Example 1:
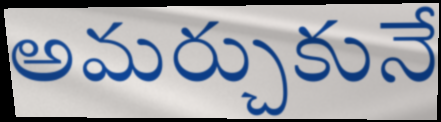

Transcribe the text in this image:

అమర్చుకునే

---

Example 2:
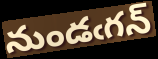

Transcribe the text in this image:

నుండఁగన్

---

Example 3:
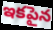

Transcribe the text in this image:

ఇకపైన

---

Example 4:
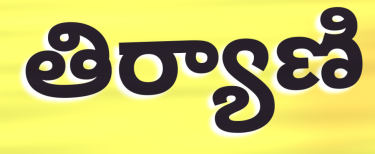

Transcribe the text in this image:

తిర్యాణి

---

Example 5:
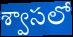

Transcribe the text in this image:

శ్వాసలో